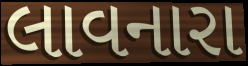
લાવનારા